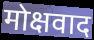
मोक्षवाद